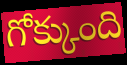
గోక్కుంది